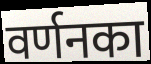
वर्णनका